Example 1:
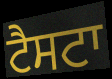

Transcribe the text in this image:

ਟੈਸਟਾ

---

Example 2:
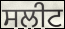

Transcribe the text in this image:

ਸਲੀਟ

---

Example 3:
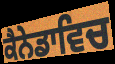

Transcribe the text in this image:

ਕੈਨੇਡਾਵਿਚ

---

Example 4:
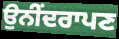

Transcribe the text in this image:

ਉਨੀਂਦਰਾਪਣ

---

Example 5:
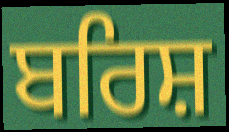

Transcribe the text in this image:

ਬਰਿਸ਼